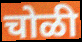
चोळी